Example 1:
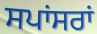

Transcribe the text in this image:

ਸਪਾਂਸਰਾਂ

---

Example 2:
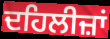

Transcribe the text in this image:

ਦਹਿਲੀਜ਼ਾਂ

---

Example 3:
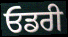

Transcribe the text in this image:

ਓਡਰੀ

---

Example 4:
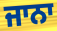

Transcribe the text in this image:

ਜਾਨਾ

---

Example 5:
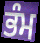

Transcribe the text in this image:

ਭੰਮ